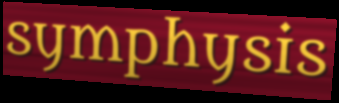
symphysis